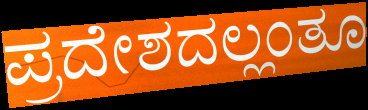
ಪ್ರದೇಶದಲ್ಲಂತೂ